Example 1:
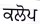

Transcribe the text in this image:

ਕਲੋਪ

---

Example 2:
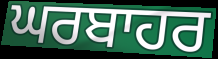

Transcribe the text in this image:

ਘਰਬਾਹਰ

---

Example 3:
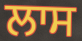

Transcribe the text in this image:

ਲਾਸ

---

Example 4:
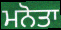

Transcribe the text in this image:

ਮਨੋਤਾ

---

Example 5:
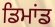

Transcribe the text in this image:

ਡਿਮਾਂਡ